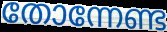
തോന്നേണ്ട